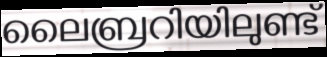
ലൈബ്രറിയിലുണ്ട്